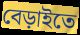
বেড়াইতে